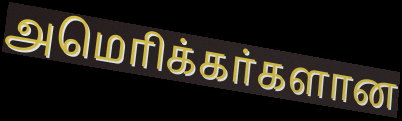
அமெரிக்கர்களான